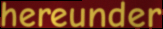
hereunder